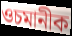
ওচমানীক